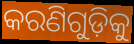
କରଣିଗୁଡ଼ିକୁ